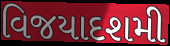
વિજયાદશમી